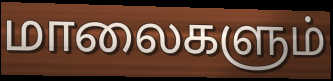
மாலைகளும்